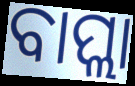
ବାପ୍ଲା